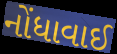
નોંધાવાઈ